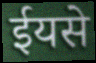
ईयसे